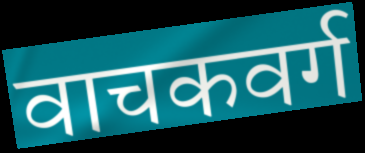
वाचकवर्ग